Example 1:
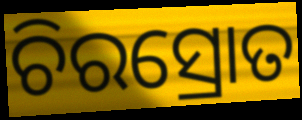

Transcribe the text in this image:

ଚିରସ୍ରୋତ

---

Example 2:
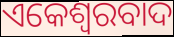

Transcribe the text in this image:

ଏକେଶ୍ୱରବାଦ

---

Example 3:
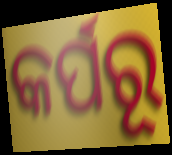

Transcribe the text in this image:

କର୍ପରୂ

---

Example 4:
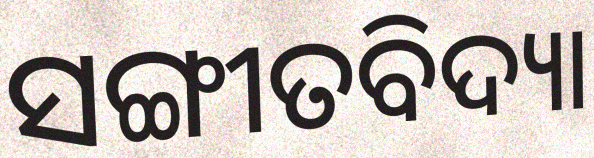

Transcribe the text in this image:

ସଙ୍ଗୀତବିଦ୍ୟା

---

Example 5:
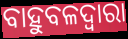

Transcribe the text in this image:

ବାହୁବଳଦ୍ୱାରା